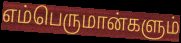
எம்பெருமான்களும்